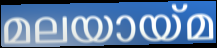
മലയായ്മ